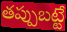
తప్పుబట్టే